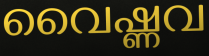
വൈഷ്ണവ